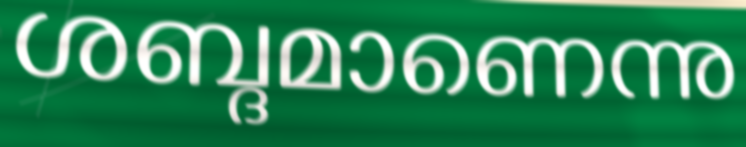
ശബ്ദമാണെന്നു